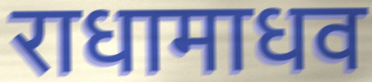
राधामाधव